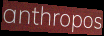
anthropos